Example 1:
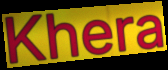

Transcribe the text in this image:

Khera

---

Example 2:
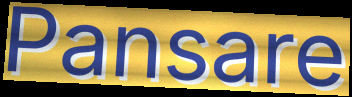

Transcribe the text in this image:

Pansare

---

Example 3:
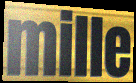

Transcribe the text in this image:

mille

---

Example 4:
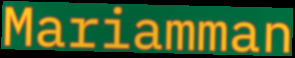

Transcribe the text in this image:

Mariamman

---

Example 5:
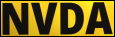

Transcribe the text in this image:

NVDA